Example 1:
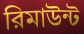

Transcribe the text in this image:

রিমাউন্ট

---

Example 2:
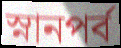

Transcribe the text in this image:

স্নানপর্ব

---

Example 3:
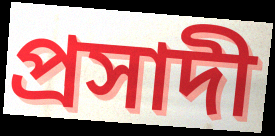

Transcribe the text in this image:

প্রসাদী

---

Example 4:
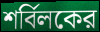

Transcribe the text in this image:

শর্বিলকের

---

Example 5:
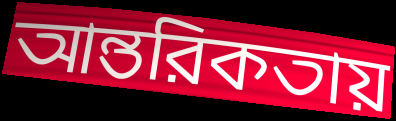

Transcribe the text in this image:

আন্তরিকতায়